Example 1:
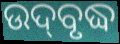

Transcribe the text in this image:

ଉଦ୍‌ବୃଦ୍ଧ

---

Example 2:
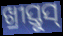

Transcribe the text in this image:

ଖ୍ରୀସ୍ତୁସ୍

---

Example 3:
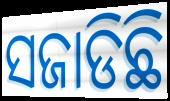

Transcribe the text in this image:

ସଜାଡିଛି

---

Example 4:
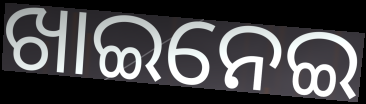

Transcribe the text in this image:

ଖାଇନେଇ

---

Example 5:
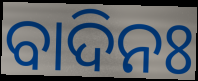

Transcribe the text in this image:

ବାଦିନଃ